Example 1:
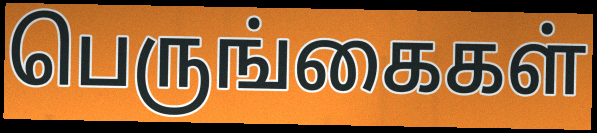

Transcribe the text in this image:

பெருங்கைகள்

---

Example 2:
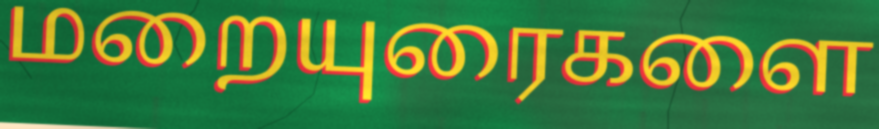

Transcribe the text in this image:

மறையுரைகளை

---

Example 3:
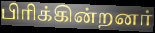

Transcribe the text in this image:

பிரிக்கின்றனர்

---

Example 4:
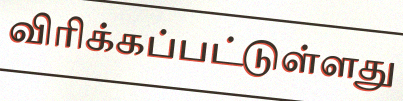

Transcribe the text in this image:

விரிக்கப்பட்டுள்ளது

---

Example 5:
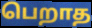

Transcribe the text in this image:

பெறாத